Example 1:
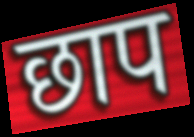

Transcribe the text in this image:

छाप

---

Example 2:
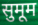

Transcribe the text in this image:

सुमूम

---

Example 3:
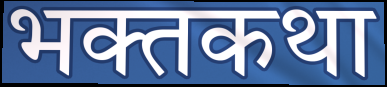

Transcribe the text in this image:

भक्तकथा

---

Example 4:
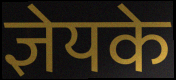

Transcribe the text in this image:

ज्ञेयके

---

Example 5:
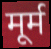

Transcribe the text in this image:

मूर्म